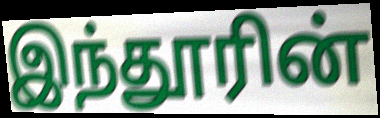
இந்தூரின்